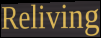
Reliving